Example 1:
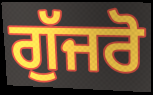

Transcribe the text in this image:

ਗੁੱਜਰੋ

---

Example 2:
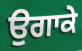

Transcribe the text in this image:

ਉਗਾਕੇ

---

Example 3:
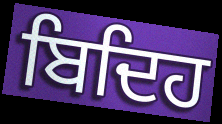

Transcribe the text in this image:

ਬਿਦਿਹ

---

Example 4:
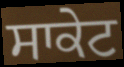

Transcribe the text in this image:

ਸਾਕੇਟ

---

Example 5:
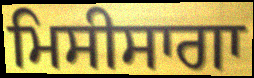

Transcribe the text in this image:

ਮਿਸੀਸਾਗਾ